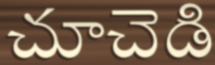
చూచెడి